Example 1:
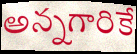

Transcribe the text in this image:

అన్నగారికే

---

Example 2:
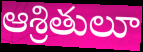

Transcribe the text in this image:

ఆశ్రితులూ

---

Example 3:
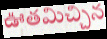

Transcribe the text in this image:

ఊతమిచ్చిన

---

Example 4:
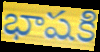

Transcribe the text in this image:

భాషకి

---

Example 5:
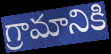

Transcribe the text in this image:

గ్రామానికి